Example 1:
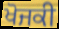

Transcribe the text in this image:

ਖੋਜਕੀ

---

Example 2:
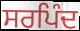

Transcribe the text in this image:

ਸਰਪਿੰਦ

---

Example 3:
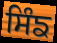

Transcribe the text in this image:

ਸਿੰਙ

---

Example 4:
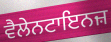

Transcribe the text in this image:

ਵੈਲੇਨਟਾਇਨਜ਼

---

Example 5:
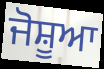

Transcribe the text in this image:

ਜੋਸ਼ੂਆ